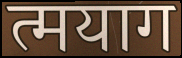
त्मयाग